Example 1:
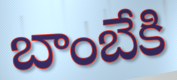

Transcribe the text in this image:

బాంబేకి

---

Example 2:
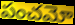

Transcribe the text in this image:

పంచమో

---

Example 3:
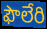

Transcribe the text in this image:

ఫౌలేరి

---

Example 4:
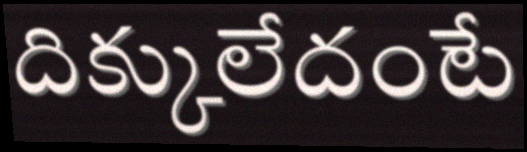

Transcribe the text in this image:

దిక్కులేదంటే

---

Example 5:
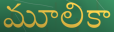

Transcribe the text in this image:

మూలికా